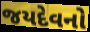
જયદેવનો